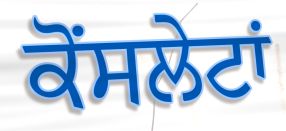
ਕੋਂਸਲੇਟਾਂ